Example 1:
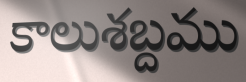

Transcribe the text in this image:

కాలుశబ్దము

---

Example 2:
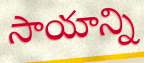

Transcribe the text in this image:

సాయాన్ని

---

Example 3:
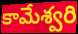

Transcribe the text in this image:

కామేశ్వరి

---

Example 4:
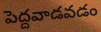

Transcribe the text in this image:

పెద్దవాడవడం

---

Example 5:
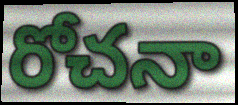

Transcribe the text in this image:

రోచనా